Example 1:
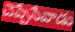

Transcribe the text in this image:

చెప్పేసేవాడు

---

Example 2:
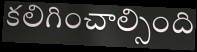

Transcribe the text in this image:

కలిగించాల్సింది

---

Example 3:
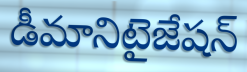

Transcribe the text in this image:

డీమానిటైజేషన్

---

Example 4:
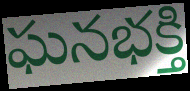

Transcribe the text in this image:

ఘనభక్తి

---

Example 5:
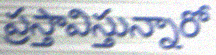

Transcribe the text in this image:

ప్రస్తావిస్తున్నారో